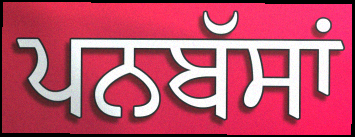
ਪਨਬੱਸਾਂ